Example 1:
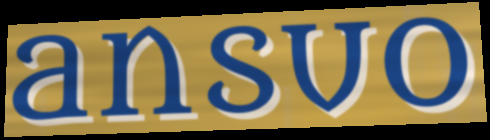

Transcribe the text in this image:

ansuo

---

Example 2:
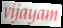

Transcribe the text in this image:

vijayam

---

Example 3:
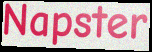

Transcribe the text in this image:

Napster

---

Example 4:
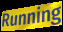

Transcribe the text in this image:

Running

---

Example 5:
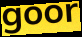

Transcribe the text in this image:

goor